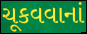
ચૂકવવાનાં